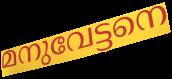
മനുവേട്ടനെ